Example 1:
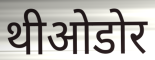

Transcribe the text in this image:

थीओडोर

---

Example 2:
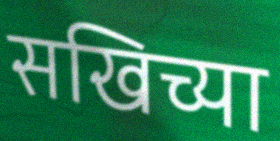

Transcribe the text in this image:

सखिच्या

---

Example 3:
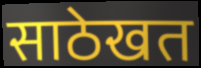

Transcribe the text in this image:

साठेखत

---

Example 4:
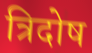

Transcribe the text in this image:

त्रिदोष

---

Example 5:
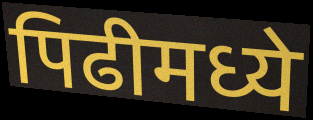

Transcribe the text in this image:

पिढीमध्ये